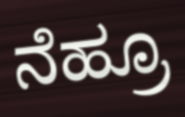
ನೆಹ್ರೂ